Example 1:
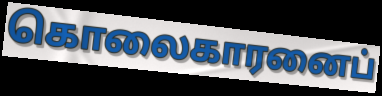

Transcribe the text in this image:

கொலைகாரனைப்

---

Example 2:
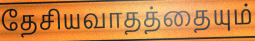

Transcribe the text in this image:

தேசியவாதத்தையும்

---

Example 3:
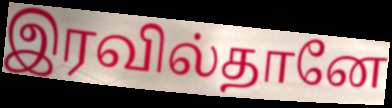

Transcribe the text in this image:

இரவில்தானே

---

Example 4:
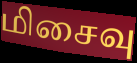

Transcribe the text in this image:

மிசைவு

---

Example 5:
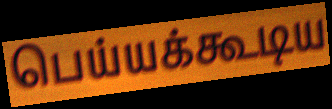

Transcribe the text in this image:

பெய்யக்கூடிய